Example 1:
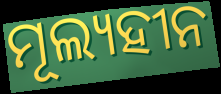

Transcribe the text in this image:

ମୂଲ୍ୟହୀନ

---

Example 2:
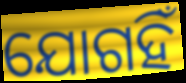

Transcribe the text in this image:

ଯୋଗହିଁ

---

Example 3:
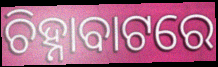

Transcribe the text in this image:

ଚିହ୍ନାବାଟରେ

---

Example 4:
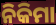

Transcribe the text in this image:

ନିକିମା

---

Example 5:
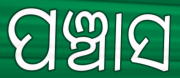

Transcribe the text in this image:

ପଞ୍ଚାସ